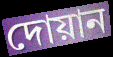
দোয়ান